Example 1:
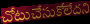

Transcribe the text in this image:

చోటుచేసుకోలేదని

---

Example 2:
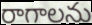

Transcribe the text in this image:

రాగాలను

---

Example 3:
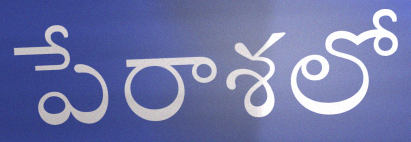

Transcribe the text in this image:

పేరాశలో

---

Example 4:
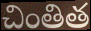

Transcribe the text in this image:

చింతిత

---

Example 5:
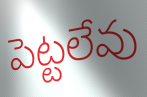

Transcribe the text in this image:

పెట్టలేవు